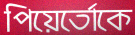
পিয়ের্তোকে